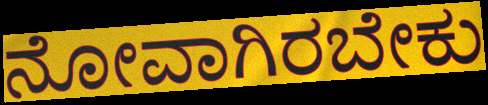
ನೋವಾಗಿರಬೇಕು